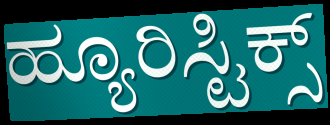
ಹ್ಯೂರಿಸ್ಟಿಕ್ಸ್